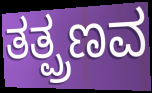
ತತ್ಪ್ರಣವ